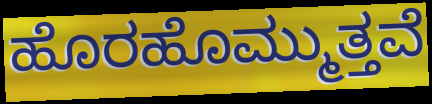
ಹೊರಹೊಮ್ಮುತ್ತವೆ